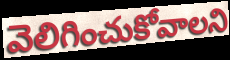
వెలిగించుకోవాలని